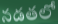
నడతలో